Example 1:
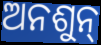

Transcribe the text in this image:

ଅନଶୁନ୍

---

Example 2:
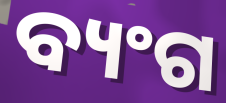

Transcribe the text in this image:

ବ୍ୟଂଗ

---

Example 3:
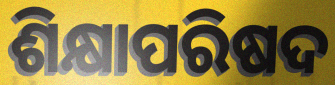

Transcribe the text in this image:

ଶିକ୍ଷାପରିଷଦ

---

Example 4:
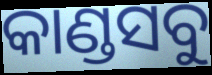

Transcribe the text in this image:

କାଣ୍ଡସବୁ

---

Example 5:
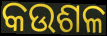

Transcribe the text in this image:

କଉଶଳ